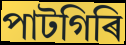
পাটগিৰি